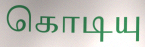
கொடியு